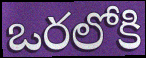
ఒరలోకి